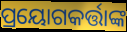
ପ୍ରୟୋଗକର୍ତ୍ତାଙ୍କ